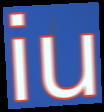
iu